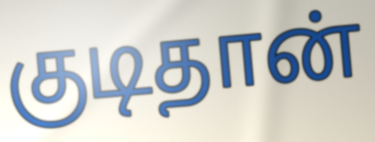
குடிதான்